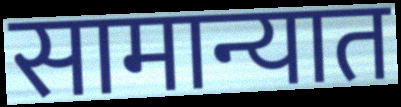
सामान्यात